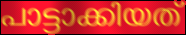
പാട്ടാക്കിയത്